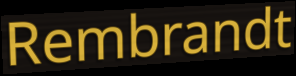
Rembrandt